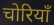
चोरियाँ